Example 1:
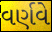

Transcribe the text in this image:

વર્ણવે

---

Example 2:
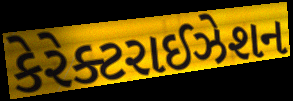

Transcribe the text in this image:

કેરેક્ટરાઈઝેશન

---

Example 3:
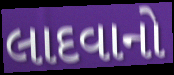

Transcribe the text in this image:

લાદવાનો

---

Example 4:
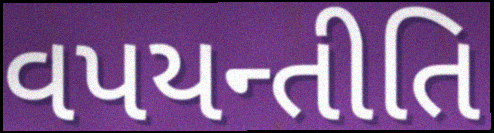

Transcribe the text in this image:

વપયન્તીતિ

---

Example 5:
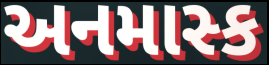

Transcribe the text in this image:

અનમાસ્ક